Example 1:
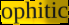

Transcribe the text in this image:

ophitic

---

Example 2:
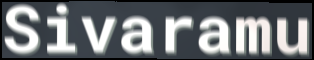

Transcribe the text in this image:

Sivaramu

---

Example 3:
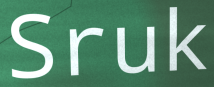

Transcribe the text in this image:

Sruk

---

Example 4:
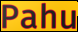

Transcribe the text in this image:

Pahu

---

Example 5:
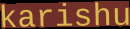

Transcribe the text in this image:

karishu